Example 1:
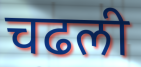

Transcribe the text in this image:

चढली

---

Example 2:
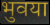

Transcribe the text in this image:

भुवया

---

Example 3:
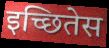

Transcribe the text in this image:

इच्छितेस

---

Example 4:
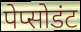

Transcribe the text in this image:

पेप्सोडंट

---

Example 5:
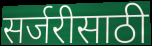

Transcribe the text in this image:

सर्जरीसाठी